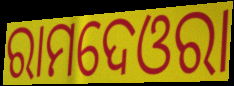
ରାମଦେଓରା